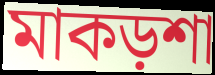
মাকড়শা